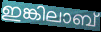
ഇങ്കിലാബ്